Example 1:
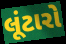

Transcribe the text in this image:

લૂંટારો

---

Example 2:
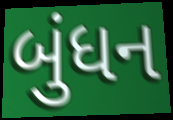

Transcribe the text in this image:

બુંધન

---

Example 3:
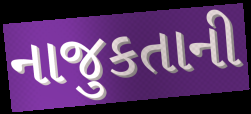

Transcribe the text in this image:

નાજુકતાની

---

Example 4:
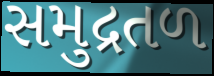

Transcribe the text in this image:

સમુદ્રતળ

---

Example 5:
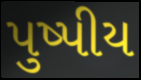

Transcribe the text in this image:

પુષ્પીય